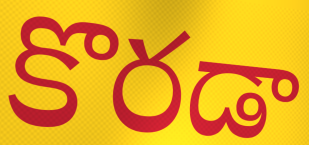
కొరడా